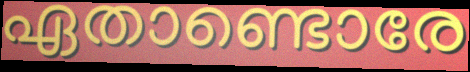
ഏതാണ്ടൊരേ